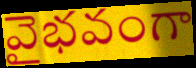
వైభవంగా